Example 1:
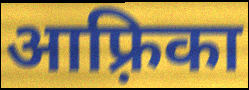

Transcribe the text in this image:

आफ़्रिका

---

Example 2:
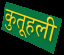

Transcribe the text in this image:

कुतूहली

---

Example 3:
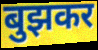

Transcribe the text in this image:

बुझकर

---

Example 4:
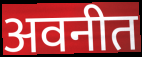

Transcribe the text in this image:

अवनीत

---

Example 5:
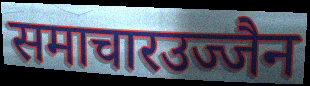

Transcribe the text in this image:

समाचारउज्जैन